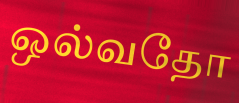
ஒல்வதோ